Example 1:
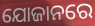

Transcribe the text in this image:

ଯୋଜାନରେ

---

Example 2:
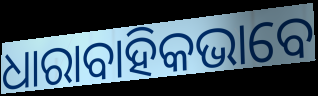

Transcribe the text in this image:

ଧାରାବାହିକଭାବେ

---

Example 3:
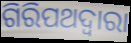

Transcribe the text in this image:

ଗିରିପଥଦ୍ୱାରା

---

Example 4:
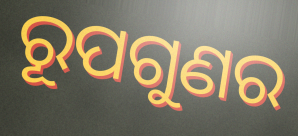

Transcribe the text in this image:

ରୂପଗୁଣର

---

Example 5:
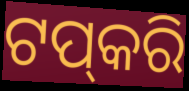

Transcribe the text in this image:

ଟପ୍‌କରି